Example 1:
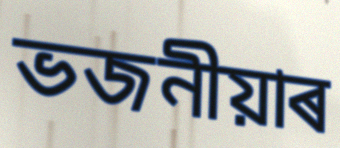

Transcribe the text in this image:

ভজনীয়াৰ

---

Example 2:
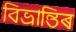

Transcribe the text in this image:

বিভ্ৰান্তিৰ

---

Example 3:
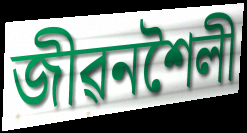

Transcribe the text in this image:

জীৱনশৈলী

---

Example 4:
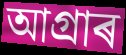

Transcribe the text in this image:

আগ্ৰাৰ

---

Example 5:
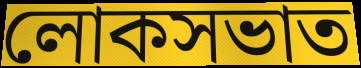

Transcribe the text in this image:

লোকসভাত